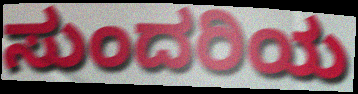
ಸುಂದರಿಯ